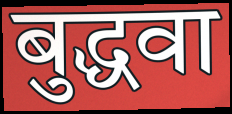
बुद्धवा